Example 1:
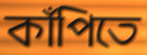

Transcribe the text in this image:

কাঁপিতে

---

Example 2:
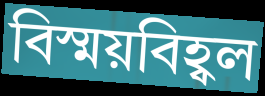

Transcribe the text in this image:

বিস্ময়বিহ্বল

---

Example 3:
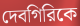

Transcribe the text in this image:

দেবগিরিকে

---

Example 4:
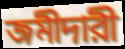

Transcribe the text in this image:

জমীদারী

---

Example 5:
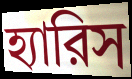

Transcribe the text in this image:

হ্যারিস